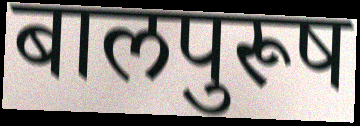
बालपुरूष